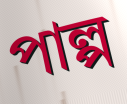
পাল্প